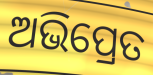
ଅଭିପ୍ରେତ